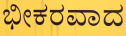
ಭೀಕರವಾದ